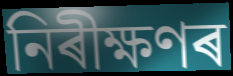
নিৰীক্ষণৰ